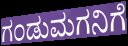
ಗಂಡುಮಗನಿಗೆ